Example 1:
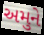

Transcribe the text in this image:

અમુને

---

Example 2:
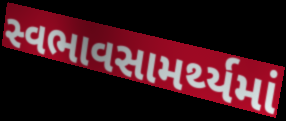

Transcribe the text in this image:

સ્વભાવસામર્થ્યમાં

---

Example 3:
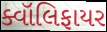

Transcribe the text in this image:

ક્વૉલિફાયર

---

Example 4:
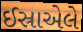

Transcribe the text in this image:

ઈસ્રાએલે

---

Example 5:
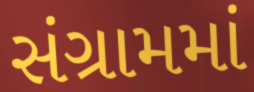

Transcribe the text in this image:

સંગ્રામમાં